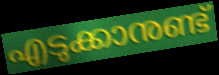
എടുക്കാനുണ്ട്